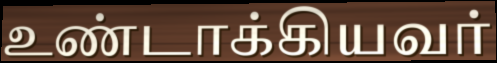
உண்டாக்கியவர்